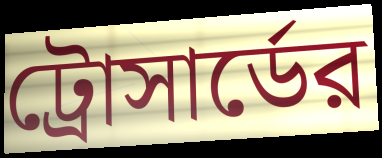
ট্রোসার্ডের